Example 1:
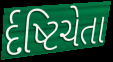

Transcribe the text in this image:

ર્દષ્ટિચેતા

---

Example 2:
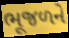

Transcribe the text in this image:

ભૂજળને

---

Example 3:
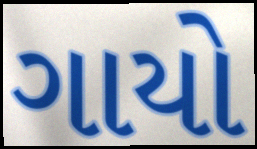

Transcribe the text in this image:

ગાયો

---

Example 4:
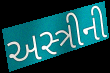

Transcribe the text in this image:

અસ્ત્રીની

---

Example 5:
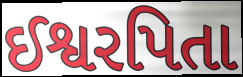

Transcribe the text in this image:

ઈશ્વરપિતા